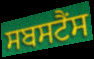
ਸਬਸਟੈਂਸ